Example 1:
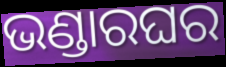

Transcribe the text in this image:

ଭଣ୍ଡାରଘର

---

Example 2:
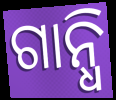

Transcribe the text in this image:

ଗାନ୍ଧି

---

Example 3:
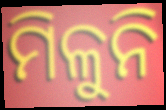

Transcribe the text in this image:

ମିଳୁନି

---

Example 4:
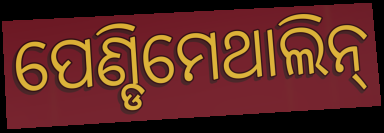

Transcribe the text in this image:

ପେଣ୍ଡିମେଥାଲିନ୍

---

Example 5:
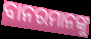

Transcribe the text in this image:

ବାନରମାନଙ୍କୁ